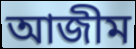
আজীম